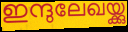
ഇന്ദുലേഖയ്ക്കു